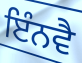
ਇੰਨਵੈ